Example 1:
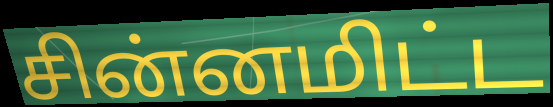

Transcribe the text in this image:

சின்னமிட்ட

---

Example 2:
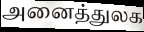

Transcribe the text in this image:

அனைத்துலக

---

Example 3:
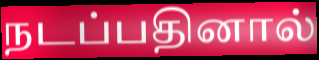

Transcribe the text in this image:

நடப்பதினால்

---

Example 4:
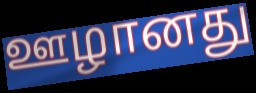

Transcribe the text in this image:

ஊழானது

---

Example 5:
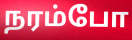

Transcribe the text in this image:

நரம்போ